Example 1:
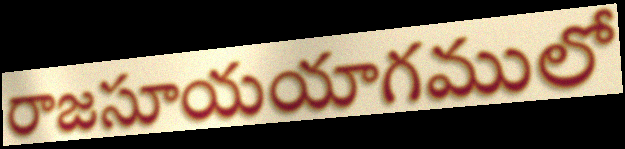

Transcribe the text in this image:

రాజసూయయాగములో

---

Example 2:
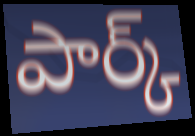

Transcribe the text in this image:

పార్క్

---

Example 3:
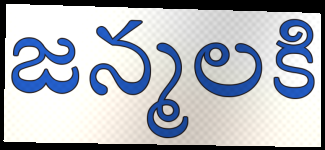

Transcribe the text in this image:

జన్మలకి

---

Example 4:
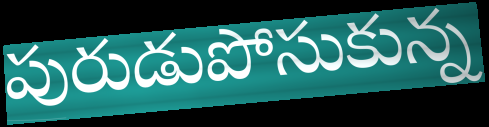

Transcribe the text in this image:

పురుడుపోసుకున్న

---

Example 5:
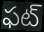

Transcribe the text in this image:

ఫట్